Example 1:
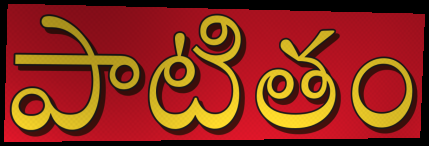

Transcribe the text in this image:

పాటితం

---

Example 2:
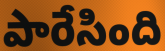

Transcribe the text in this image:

పారేసింది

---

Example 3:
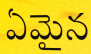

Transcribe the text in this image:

ఏమైన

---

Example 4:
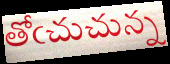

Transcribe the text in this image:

తోఁచుచున్న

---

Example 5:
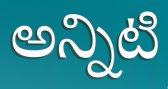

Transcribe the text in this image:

అన్నిటి